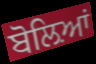
ਬੋਲ਼ਿਆਂ